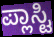
ಪ್ಲಾಸ್ಟಿ